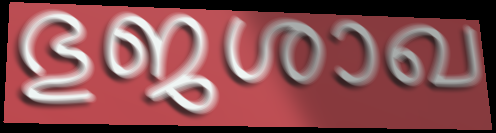
ഭുജശാഖ